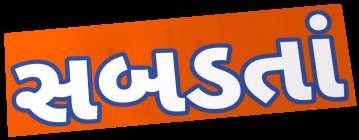
સબડતાં